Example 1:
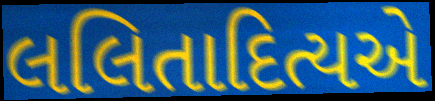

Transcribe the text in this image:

લલિતાદિત્યએ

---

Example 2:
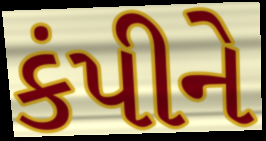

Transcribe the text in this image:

કંપીને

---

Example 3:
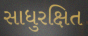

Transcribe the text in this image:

સાધુરક્ષિત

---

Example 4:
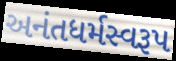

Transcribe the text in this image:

અનંતધર્મસ્વરૂપ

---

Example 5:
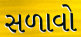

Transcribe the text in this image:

સળાવો